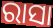
ରାସା